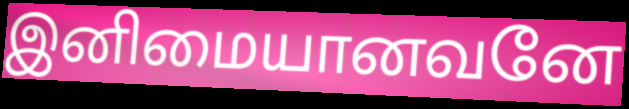
இனிமையானவனே